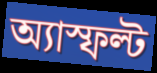
অ্যাস্ফল্ট